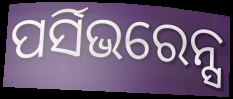
ପର୍ସିଭରେନ୍ସ